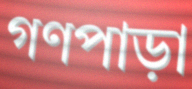
গণপাড়া